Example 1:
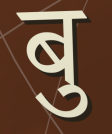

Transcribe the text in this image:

बु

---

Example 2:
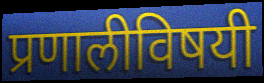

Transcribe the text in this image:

प्रणालीविषयी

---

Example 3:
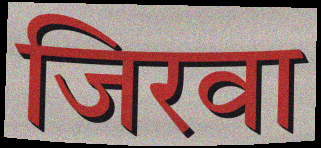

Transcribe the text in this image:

जिरवा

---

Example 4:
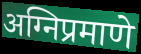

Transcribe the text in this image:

अग्निप्रमाणे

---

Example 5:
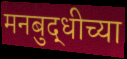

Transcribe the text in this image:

मनबुद्धीच्या